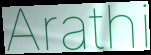
Arathi